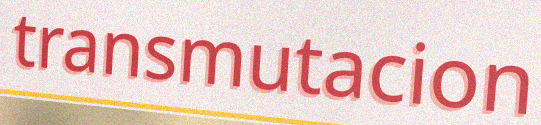
transmutacion